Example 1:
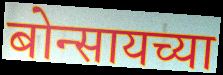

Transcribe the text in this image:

बोन्सायच्या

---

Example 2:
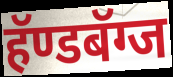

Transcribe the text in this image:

हॅण्डबॅग्ज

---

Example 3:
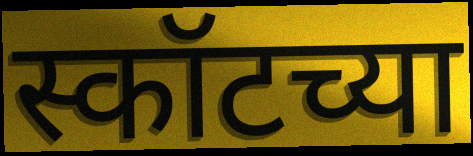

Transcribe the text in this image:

स्कॉटच्या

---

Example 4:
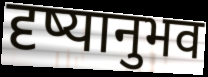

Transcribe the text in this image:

दृष्यानुभव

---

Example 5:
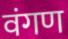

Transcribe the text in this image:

वंगण